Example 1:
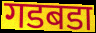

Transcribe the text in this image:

गडबडा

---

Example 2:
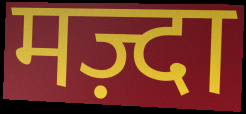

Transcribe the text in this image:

मज़्दा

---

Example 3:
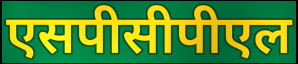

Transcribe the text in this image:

एसपीसीपीएल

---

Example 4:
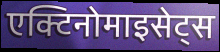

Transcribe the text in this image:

एक्टिनोमाइसेट्स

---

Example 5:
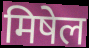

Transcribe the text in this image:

मिषेल